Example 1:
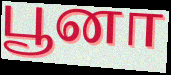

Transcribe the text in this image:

பூனா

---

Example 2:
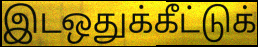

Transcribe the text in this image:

இடஒதுக்கீட்டுக்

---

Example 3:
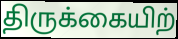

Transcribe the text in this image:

திருக்கையிற்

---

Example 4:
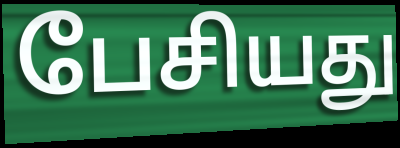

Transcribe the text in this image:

பேசியது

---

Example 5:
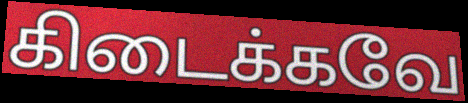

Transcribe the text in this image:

கிடைக்கவே